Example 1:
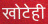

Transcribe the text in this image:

खोटेही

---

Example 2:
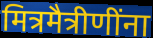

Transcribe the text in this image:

मित्रमैत्रीणींना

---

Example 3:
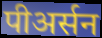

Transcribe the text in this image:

पीअर्सन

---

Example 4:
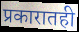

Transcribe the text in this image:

प्रकारातही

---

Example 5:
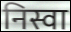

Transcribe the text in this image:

निस्वा